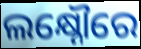
ଲକ୍ଷ୍ନୌରେ